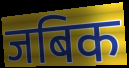
जबिक